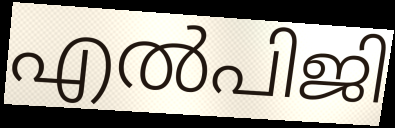
എൽപിജി